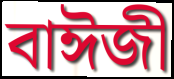
বাঈজী